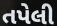
તપેલી